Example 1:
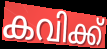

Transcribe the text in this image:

കവിക്ക്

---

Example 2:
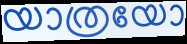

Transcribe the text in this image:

യാത്രയോ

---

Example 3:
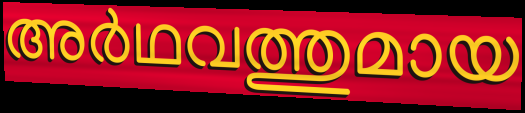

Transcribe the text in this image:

അർഥവത്തുമായ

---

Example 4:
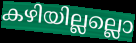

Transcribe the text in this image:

കഴിയില്ലല്ലൊ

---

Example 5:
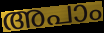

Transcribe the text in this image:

അപാം